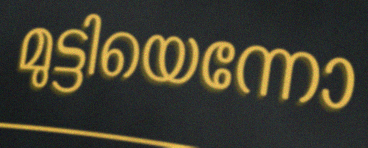
മുട്ടിയെന്നോ